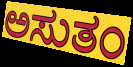
ಅಸುತಂ